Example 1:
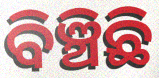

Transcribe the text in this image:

ବିଞ୍ଚିଛି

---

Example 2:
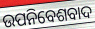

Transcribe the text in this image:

ଉପନିବେଶବାଦ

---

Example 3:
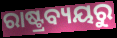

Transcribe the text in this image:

ରାଷ୍ଟ୍ରବ୍ୟୟରୁ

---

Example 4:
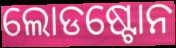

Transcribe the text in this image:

ଲୋଡଷ୍ଟୋନ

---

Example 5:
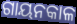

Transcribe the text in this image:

ଗାୟନକାଳ